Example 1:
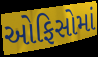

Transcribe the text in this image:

ઓફિસોમાં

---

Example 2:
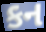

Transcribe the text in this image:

કન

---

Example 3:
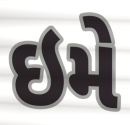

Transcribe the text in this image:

ઇમે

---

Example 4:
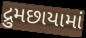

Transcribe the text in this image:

દ્રુમછાયામાં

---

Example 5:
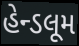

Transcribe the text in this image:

હેન્ડલૂમ